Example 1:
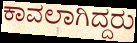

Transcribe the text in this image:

ಕಾವಲಾಗಿದ್ದರು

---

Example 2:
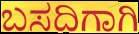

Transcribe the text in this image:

ಬಸದಿಗಾಗಿ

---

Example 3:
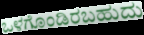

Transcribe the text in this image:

ಒಳಗೊಂಡಿರಬಹುದು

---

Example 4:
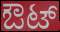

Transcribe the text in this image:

ಔಟ್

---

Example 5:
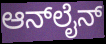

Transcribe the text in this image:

ಆನ್‍ಲೈನ್